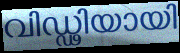
വിഡ്ഢിയായി